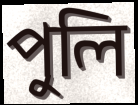
পুলি